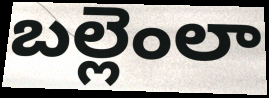
బల్లెంలా